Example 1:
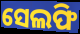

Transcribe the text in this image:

ସେଲଫି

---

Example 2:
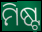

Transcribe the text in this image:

ମିଷ୍ଟ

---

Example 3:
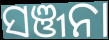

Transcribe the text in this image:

ସଞ୍ଜନା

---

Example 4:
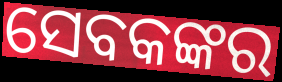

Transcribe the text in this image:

ସେବକଙ୍କର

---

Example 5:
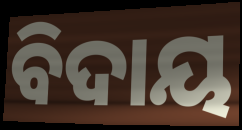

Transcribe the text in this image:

ବିଦାୟ